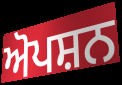
ਅੋਪਸ਼ਨ